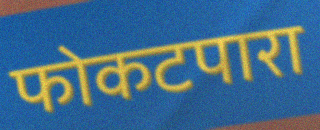
फोकटपारा